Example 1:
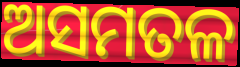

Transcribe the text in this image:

ଅସମତଳ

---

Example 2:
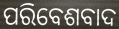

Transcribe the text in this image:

ପରିବେଶବାଦ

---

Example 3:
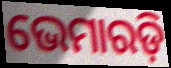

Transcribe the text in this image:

ଭେମାରଡ଼ି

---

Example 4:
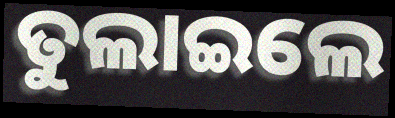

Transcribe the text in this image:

ତୁଲାଇଲେ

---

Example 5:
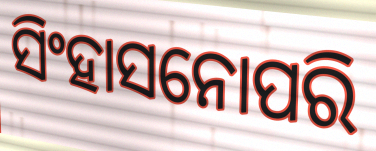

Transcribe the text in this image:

ସିଂହାସନୋପରି